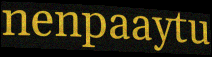
nenpaaytu